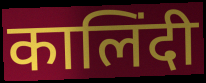
कालिंदी